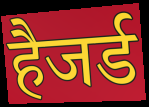
हैजर्ड